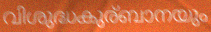
വിശുദ്ധകുര്ബാനയും